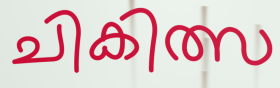
ചികിത്സ